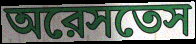
অরেসতেস